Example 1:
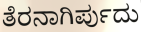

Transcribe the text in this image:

ತೆರನಾಗಿರ್ಪುದು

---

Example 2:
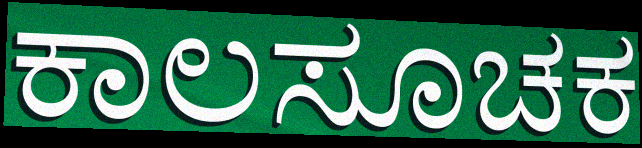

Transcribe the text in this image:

ಕಾಲಸೂಚಕ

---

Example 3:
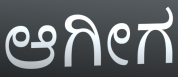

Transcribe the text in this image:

ಆಗೀಗ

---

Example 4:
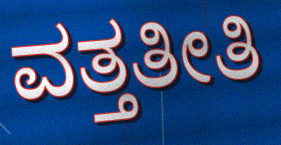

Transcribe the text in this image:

ವತ್ತತೀತಿ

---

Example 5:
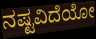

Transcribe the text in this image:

ನಷ್ಟವಿದೆಯೋ